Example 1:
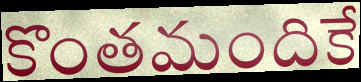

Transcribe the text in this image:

కొంతమందికే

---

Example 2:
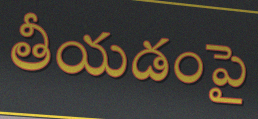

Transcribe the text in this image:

తీయడంపై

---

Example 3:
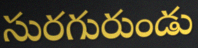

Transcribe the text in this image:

సురగురుండు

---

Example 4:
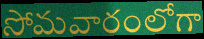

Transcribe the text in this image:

సోమవారంలోగా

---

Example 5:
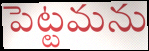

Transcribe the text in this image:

పెట్టమను